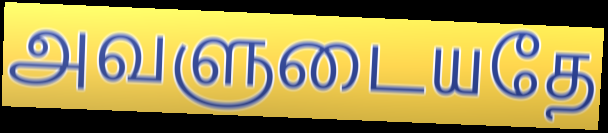
அவளுடையதே